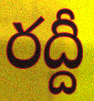
రద్దీ